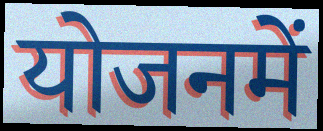
योजनमें